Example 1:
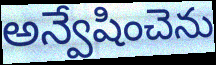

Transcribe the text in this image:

అన్వేషించెను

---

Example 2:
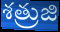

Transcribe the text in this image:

శత్రుజి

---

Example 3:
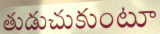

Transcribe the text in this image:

తుడుచుకుంటూ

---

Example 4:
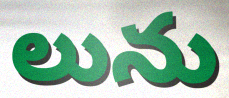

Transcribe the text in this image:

లును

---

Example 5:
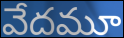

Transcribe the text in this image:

వేదమూ